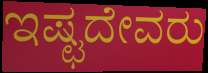
ಇಷ್ಟದೇವರು